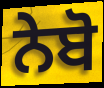
ਨੇਬੋ